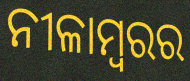
ନୀଳାମ୍ବରର